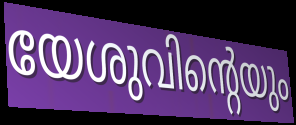
യേശുവിന്റെയും